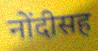
नोंदीसह